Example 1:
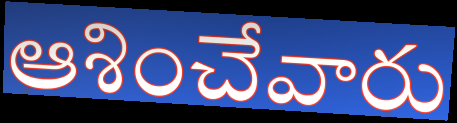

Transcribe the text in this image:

ఆశించేవారు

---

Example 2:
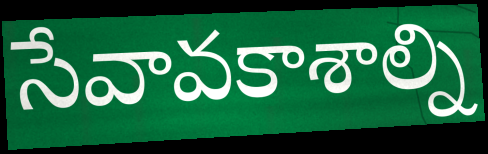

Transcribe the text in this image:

సేవావకాశాల్ని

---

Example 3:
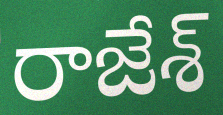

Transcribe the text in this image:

రాజేశ్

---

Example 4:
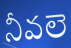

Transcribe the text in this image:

నీవలె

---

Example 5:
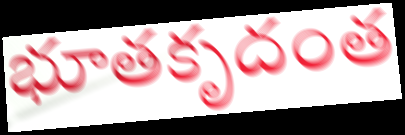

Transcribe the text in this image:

భూతకృదంత